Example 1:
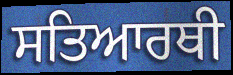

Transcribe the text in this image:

ਸਤਿਆਰਥੀ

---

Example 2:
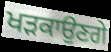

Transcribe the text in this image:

ਖੜਕਾਉਣਗੇ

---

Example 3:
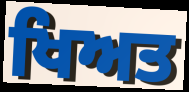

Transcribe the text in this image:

ਖਿਅਤ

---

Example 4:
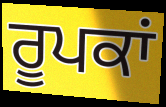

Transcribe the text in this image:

ਰੂਪਕਾਂ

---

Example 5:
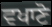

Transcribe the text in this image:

ਵਖਾਣੋ